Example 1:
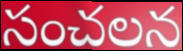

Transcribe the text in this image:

సంచలన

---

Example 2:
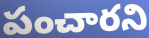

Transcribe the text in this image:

పంచారని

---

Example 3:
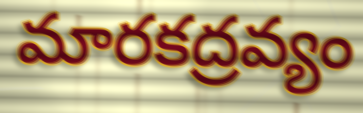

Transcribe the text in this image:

మారకద్రవ్యం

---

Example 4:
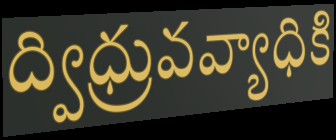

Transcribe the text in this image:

ద్విధ్రువవ్యాధికి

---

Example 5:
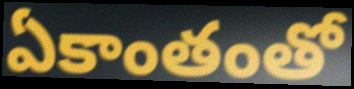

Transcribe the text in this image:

ఏకాంతంతో